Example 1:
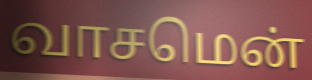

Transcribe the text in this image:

வாசமென்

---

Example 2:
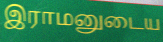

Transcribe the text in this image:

இராமனுடைய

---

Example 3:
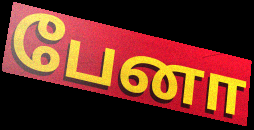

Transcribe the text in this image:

பேனா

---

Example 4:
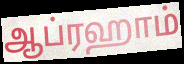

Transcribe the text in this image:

ஆப்ரஹாம்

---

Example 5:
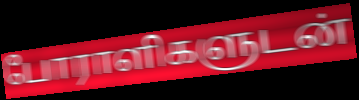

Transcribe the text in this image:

போராளிகளுடன்